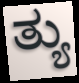
ತ್ಯು